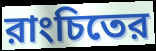
রাংচিতের